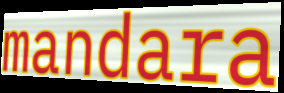
mandara